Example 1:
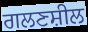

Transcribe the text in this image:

ਗਲਣਸ਼ੀਲ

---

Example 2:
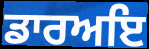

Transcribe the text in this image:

ਡਾਰਅਇ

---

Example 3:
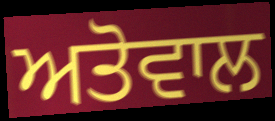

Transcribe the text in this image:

ਅਤੋਵਾਲ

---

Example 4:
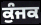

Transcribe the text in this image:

ਕੁੰਜਕ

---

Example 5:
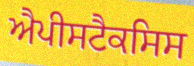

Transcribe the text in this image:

ਐਪੀਸਟੈਕਸਿਸ